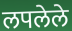
लपलेले